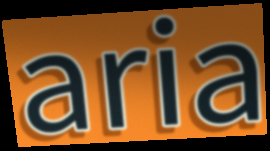
aria